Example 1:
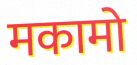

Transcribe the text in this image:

मकामो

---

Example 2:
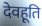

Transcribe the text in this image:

देवहूति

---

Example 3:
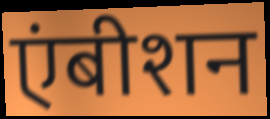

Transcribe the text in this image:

एंबीशन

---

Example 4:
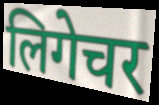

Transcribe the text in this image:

लिगेचर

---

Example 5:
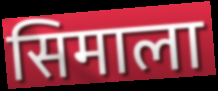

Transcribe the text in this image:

सिमाला